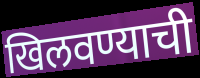
खिलवण्याची